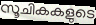
സൂചികകളുടെ